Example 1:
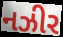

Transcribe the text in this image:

નઝીર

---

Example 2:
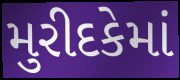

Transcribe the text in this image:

મુરીદકેમાં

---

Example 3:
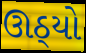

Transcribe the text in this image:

ઊઠ્યો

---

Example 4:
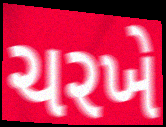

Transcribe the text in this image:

ચરખે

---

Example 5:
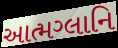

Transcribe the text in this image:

આત્મગ્લાનિ